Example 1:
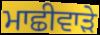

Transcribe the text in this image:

ਮਾਛੀਵਾੜੇ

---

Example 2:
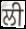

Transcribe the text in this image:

ਲੀ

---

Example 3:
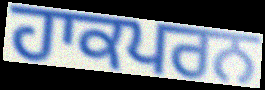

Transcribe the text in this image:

ਹਾਕਪਰਨ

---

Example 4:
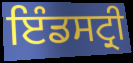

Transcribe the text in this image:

ਇੰਡਸਟ੍ਰੀ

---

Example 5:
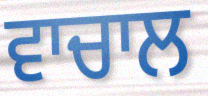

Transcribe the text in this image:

ਵਾਚਾਲ